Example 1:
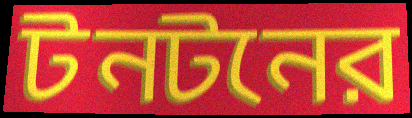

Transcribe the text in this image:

টনটনের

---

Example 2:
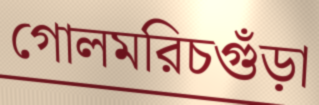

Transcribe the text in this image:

গোলমরিচগুঁড়া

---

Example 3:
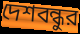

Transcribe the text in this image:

দেশবন্ধুর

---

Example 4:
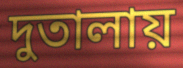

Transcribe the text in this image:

দুতালায়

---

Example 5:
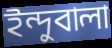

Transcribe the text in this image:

ইন্দুবালা